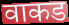
वाकड